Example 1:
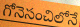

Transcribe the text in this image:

గోనెసంచిలోనే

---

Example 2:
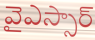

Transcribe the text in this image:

వైఎస్సార్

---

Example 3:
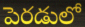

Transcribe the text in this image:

పెరడులో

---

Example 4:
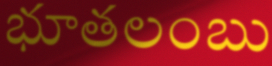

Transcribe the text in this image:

భూతలంబు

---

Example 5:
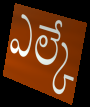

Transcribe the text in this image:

ఎల్కే